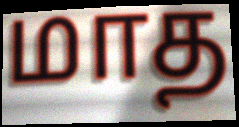
மாத